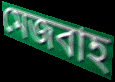
মেজবাহ